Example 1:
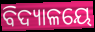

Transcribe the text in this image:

ବିଦ୍ୟାଳୟେ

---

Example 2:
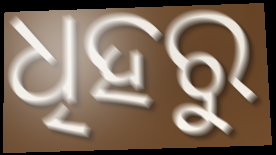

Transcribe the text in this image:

ଧିହରୁ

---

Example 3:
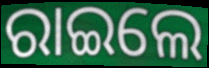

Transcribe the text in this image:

ରାଇଲେ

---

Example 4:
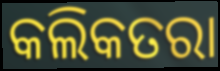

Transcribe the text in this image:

କଲିକତରା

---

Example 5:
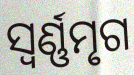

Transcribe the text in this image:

ସ୍ଵର୍ଣ୍ଣମୃଗ